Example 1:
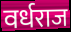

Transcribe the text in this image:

वर्धराज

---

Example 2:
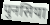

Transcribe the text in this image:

पुनसिया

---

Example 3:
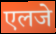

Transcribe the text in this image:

एलजे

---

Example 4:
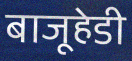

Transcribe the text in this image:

बाजूहेडी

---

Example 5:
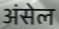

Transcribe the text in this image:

अंसेल